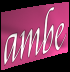
ambe